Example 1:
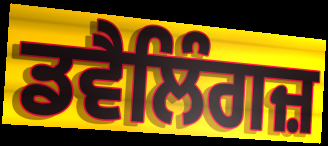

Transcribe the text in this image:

ਡਵੈਲਿੰਗਜ਼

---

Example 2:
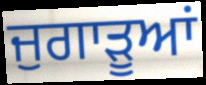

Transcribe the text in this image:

ਜੁਗਾੜੂਆਂ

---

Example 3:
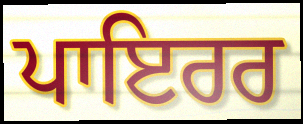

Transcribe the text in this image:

ਪਾਇਰਰ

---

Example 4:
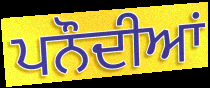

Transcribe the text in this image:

ਪਨੌਦੀਆਂ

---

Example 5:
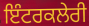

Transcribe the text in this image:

ਇੰਟਰਕਲੇਰੀ